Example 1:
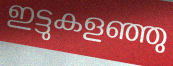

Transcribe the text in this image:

ഇട്ടുകളഞ്ഞു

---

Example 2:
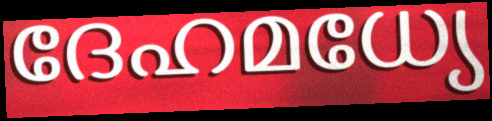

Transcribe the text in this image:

ദേഹമധ്യേ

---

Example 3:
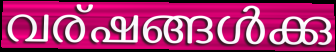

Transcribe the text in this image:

വര്ഷങ്ങൾക്കു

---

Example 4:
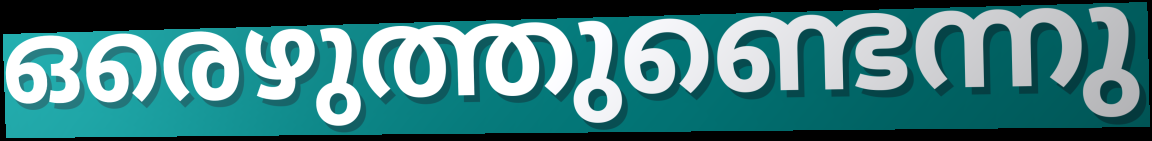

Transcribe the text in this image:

ഒരെഴുത്തുണ്ടെന്നു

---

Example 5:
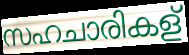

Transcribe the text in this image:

സഹചാരികള്